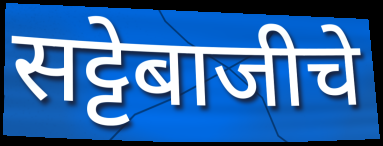
सट्टेबाजीचे